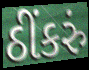
ઠીંકરું